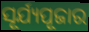
ସୂର୍ଯ୍ୟପୂଜାର